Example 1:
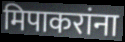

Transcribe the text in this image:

मिपाकरांना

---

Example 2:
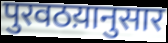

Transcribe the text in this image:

पुरवठय़ानुसार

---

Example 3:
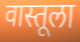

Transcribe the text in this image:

वास्तूला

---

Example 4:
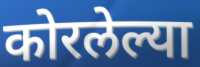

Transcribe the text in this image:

कोरलेल्या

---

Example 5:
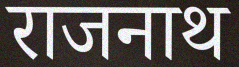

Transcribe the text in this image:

राजनाथ